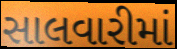
સાલવારીમાં